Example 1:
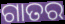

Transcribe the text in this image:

ଗାତର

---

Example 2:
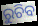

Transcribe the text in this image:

ରୁଚିବ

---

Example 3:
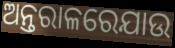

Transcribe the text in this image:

ଅନ୍ତରାଳରେଯାଉ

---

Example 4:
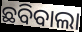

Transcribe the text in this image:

ଛବିବାଲା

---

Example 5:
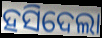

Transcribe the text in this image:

ହସିଦେଲା